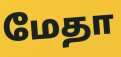
மேதா